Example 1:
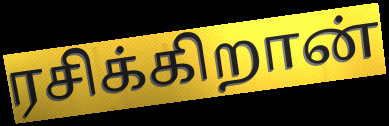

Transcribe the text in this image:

ரசிக்கிறான்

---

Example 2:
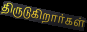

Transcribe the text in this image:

திருடுகிறார்கள்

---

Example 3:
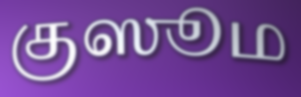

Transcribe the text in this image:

குஸூம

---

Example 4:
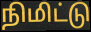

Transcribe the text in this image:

நிமிட்டு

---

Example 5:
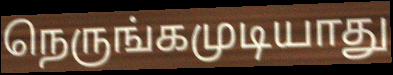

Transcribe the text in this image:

நெருங்கமுடியாது